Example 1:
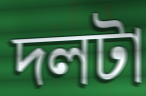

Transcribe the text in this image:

দলটা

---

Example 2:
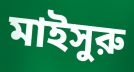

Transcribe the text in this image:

মাইসুরু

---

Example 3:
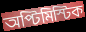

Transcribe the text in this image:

অপ্টিমিস্টিক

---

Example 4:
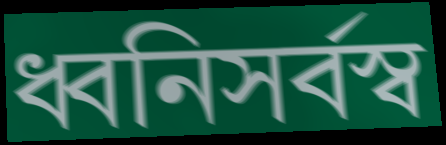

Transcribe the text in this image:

ধ্বনিসর্বস্ব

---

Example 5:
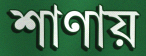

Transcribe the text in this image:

শাণায়